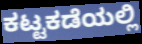
ಕಟ್ಟಕಡೆಯಲ್ಲಿ